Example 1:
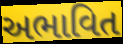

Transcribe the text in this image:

અભાવિત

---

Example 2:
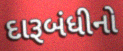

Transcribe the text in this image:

દારૂબંધીનો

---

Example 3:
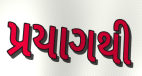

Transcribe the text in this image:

પ્રયાગથી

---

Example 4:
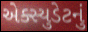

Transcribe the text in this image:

એક્સ્યુડેટનું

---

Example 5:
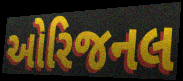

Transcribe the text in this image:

ઓરિજનલ